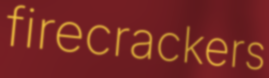
firecrackers